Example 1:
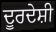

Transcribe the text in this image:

ਦੂਰਦੇਸ਼ੀ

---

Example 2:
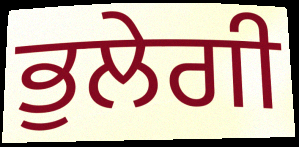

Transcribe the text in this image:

ਭੁਲੇਗੀ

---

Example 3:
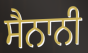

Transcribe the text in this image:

ਸੈਨਾਨੀ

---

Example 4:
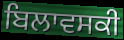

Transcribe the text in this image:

ਬਿਲਾਵਸਕੀ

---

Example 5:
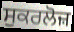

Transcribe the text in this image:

ਸੁਕਰਲੋਜ਼